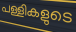
പള്ളികളുടെ